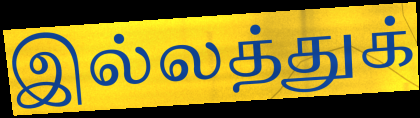
இல்லத்துக்